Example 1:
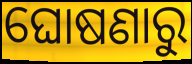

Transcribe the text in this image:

ଘୋଷଣାରୁ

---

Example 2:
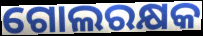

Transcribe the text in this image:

ଗୋଲରକ୍ଷକ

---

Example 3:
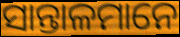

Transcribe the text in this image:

ସାନ୍ତାଳମାନେ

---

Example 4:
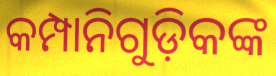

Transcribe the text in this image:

କମ୍ପାନିଗୁଡ଼ିକଙ୍କ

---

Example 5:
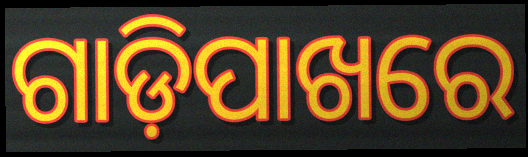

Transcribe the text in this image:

ଗାଡ଼ିପାଖରେ